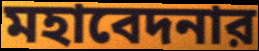
মহাবেদনার